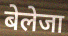
बेलेजा